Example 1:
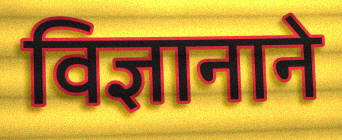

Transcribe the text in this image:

विज्ञानाने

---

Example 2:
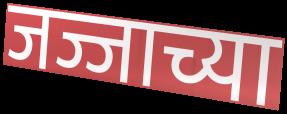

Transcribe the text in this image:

जज्जाच्या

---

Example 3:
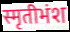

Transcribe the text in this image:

स्मृतीभंश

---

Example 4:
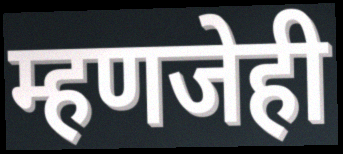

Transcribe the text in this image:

म्हणजेही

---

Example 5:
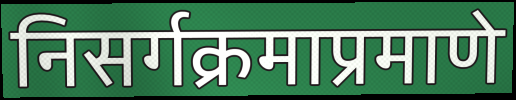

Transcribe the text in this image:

निसर्गक्रमाप्रमाणे